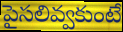
పైసలివ్వకుంటే